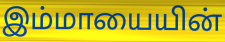
இம்மாயையின்